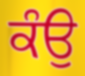
ਕੰਉ